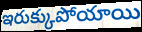
ఇరుక్కుపోయాయి